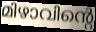
മിഴാവിന്റെ